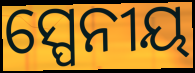
ସ୍ପେନୀୟ